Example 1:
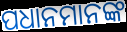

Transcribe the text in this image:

ପଧାନମାନଙ୍କ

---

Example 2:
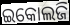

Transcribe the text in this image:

ଇକୋଲଜି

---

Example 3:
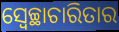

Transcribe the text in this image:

ସ୍ୱେଚ୍ଛାଚାରିତାର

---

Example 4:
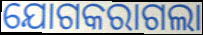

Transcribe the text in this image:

ଯୋଗକରାଗଲା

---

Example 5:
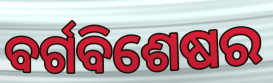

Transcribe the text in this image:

ବର୍ଗବିଶେଷର